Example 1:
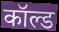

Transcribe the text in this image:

कॉल्ड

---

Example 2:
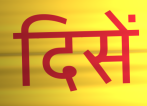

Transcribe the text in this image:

दिसें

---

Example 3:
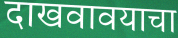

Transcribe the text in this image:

दाखवावयाचा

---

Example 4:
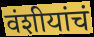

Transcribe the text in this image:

वंशीयांचं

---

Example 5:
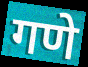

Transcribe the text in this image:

गणे